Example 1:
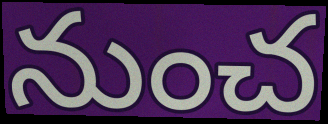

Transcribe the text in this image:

నుంచ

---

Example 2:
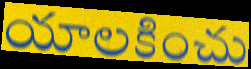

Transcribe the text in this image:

యాలకించు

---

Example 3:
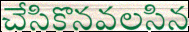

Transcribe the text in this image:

చేసికొనవలసిన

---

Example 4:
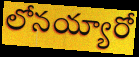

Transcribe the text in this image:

లోనయ్యారో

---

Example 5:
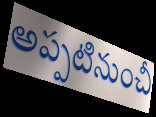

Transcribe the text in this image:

అప్పటినుంచీ